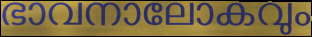
ഭാവനാലോകവും